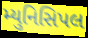
મ્યુનિસિપલ